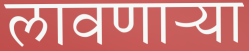
लावणाऱ्या